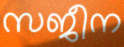
സജീന